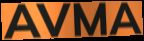
AVMA